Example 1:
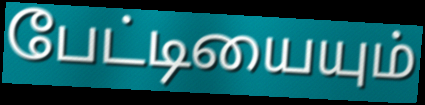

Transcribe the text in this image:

பேட்டியையும்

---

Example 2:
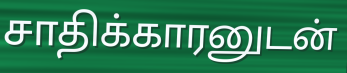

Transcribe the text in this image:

சாதிக்காரனுடன்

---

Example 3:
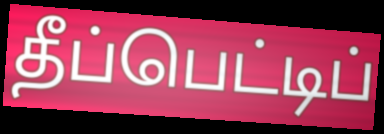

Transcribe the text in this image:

தீப்பெட்டிப்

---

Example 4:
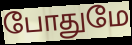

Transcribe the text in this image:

போதுமே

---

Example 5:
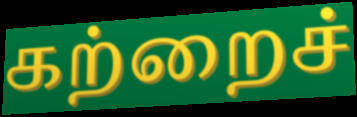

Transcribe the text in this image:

கற்றைச்